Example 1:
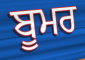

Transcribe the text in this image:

ਬੂਮਰ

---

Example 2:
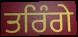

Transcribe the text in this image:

ਤਰਿੰਗੇ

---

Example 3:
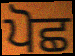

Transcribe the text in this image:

ਪੋਛ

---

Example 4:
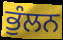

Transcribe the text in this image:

ਭੁੰਲਨ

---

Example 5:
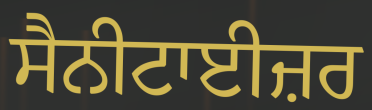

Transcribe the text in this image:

ਸੈਨੀਟਾਈਜ਼ਰ